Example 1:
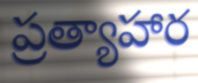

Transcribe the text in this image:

ప్రత్యాహార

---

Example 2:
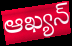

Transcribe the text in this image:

ఆఖ్యన్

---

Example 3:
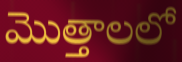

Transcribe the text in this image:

మొత్తాలలో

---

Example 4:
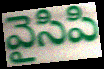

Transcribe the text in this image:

వైసిపి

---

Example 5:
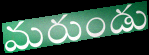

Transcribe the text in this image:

మరుండు